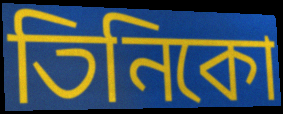
তিনিকো